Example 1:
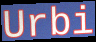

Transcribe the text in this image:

Urbi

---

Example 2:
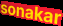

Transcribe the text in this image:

sonakar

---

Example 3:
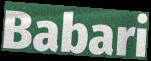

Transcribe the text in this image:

Babari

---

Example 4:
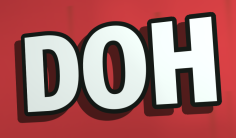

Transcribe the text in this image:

DOH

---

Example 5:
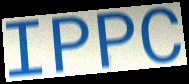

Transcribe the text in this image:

IPPC